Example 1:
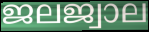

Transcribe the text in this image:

ജലജ്വാല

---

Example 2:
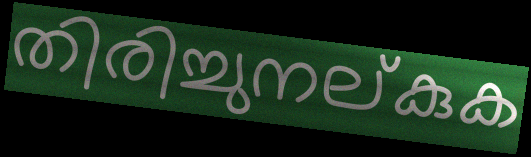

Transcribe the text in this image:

തിരിച്ചുനല്കുക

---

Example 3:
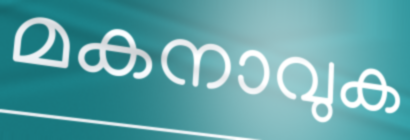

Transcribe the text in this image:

മകനാവുക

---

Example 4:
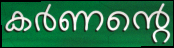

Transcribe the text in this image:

കർണന്റെ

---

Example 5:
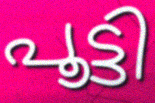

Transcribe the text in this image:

പൂട്ടി